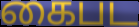
கைபட